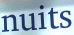
nuits